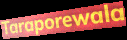
Taraporewala